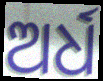
ଅର୍ଧ